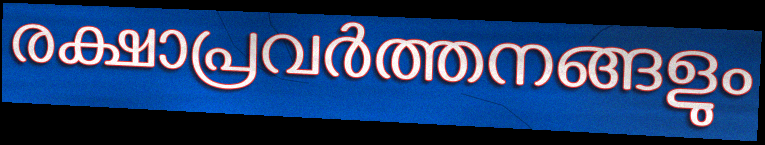
രക്ഷാപ്രവർത്തനങ്ങളും